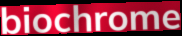
biochrome